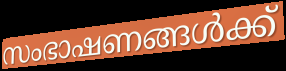
സംഭാഷണങ്ങൾക്ക്